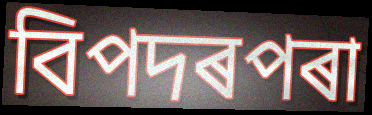
বিপদৰপৰা